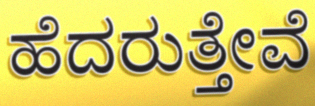
ಹೆದರುತ್ತೇವೆ